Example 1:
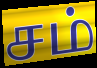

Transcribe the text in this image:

சம்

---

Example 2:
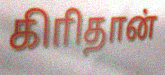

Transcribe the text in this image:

கிரிதான்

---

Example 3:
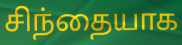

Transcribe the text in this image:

சிந்தையாக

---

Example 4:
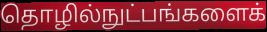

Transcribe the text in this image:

தொழில்நுட்பங்களைக்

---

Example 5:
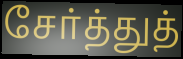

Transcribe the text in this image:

சேர்த்துத்